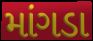
માંગડા